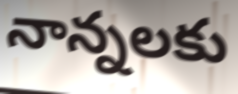
నాన్నలకు